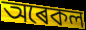
অৰেকল